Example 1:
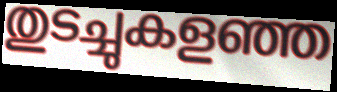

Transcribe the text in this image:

തുടച്ചുകളഞ്ഞ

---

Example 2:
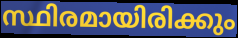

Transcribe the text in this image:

സ്ഥിരമായിരിക്കും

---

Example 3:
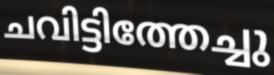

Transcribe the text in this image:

ചവിട്ടിത്തേച്ചു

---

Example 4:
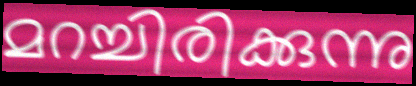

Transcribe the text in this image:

മറച്ചിരിക്കുന്നു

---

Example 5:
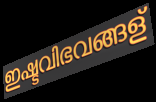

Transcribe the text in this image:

ഇഷ്ടവിഭവങ്ങള്